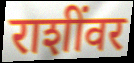
राशींवर